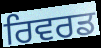
ਰਿਵਰਡ